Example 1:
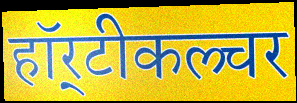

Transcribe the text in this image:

हॉर्टीकल्चर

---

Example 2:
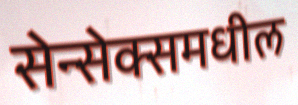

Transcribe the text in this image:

सेन्सेक्समधील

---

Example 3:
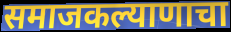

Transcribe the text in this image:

समाजकल्याणाचा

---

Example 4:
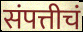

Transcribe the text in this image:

संपत्तीचं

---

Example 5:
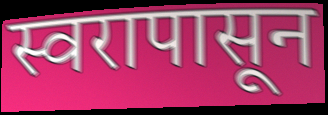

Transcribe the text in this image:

स्वरापासून